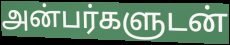
அன்பர்களுடன்